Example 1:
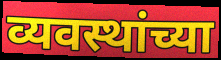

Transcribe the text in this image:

व्यवस्थांच्या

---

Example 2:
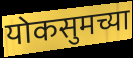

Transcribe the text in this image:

योकसुमच्या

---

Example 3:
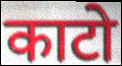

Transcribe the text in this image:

काटो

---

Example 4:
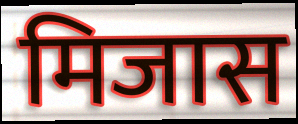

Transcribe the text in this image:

मिजास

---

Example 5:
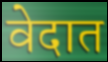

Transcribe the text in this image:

वेदात